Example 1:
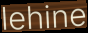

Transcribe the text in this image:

lehine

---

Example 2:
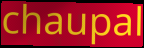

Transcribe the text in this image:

chaupal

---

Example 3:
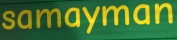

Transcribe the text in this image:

samayman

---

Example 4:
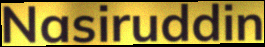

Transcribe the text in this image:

Nasiruddin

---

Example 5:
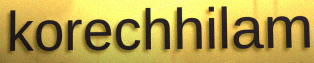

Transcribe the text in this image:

korechhilam